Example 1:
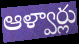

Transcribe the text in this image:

ఆళ్వార్లు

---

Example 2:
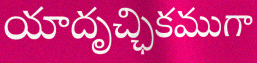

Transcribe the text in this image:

యాదృచ్ఛికముగా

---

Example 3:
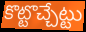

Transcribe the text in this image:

కొట్టొచ్చేట్టు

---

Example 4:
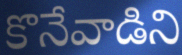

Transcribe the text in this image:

కొనేవాడిని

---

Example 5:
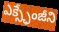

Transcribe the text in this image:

ఎక్స్ఛేంజీని